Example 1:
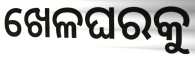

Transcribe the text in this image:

ଖେଳଘରକୁ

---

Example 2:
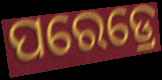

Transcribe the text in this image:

ପରେଡ୍ରେ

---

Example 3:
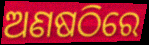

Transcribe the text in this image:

ଅଣଷଠିରେ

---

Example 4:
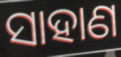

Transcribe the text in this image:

ସାହାଣ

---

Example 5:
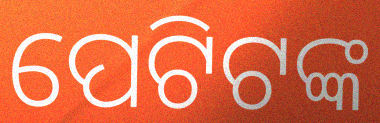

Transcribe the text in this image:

ପେଟିଟଙ୍କ